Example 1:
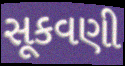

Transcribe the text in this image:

સૂકવણી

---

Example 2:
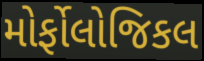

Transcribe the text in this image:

મોર્ફોલોજિકલ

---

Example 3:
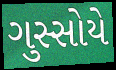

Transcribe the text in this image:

ગુસ્સોયે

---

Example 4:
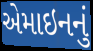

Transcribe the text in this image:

એમાઇનનું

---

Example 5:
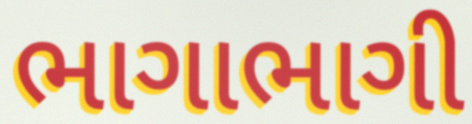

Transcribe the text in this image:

ભાગાભાગી